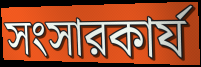
সংসারকার্য